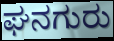
ಘನಗುರು